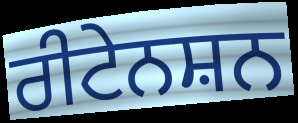
ਰੀਟੇਨਸ਼ਨ